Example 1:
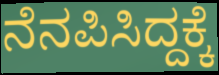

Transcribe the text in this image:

ನೆನಪಿಸಿದ್ದಕ್ಕೆ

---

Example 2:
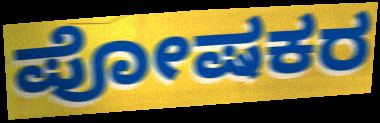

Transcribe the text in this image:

ಪೋಷಕರ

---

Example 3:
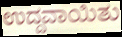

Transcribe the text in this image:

ಉದ್ದವಾಯಿತು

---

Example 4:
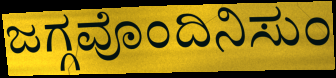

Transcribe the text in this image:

ಜಗ್ಗವೊಂದಿನಿಸುಂ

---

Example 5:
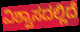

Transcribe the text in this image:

ವಿಶ್ವಾಸದಲ್ಲಿದೆ